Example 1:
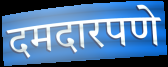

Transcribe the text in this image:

दमदारपणे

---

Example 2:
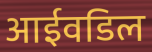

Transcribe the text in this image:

आईवडिल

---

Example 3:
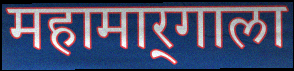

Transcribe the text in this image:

महामार्गाला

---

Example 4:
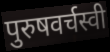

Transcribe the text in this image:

पुरुषवर्चस्वी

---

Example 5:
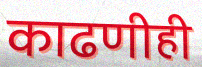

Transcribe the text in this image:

काढणीही